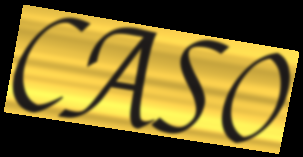
CASO